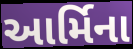
આર્મિના